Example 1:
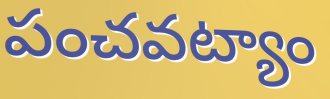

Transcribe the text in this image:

పంచవట్యాం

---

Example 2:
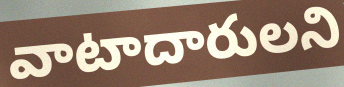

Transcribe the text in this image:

వాటాదారులని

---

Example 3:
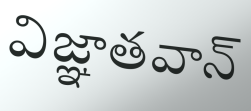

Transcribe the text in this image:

విజ్ఞాతవాన్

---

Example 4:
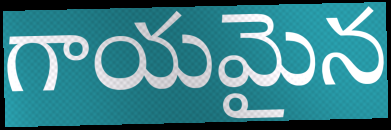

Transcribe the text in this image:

గాయమైన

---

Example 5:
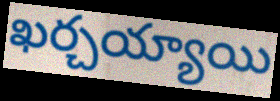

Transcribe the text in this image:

ఖర్చయ్యాయి